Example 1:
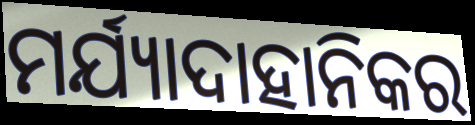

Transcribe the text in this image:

ମର୍ଯ୍ୟାଦାହାନିକର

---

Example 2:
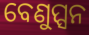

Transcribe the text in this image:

ବେଣୁପ୍ସନ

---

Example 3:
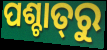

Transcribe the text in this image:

ପଶ୍ଚାତ୍‌ରୁ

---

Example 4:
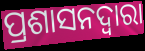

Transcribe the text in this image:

ପ୍ରଶାସନଦ୍ୱାରା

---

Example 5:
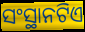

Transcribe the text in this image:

ସଂସ୍ଥାନଟିଏ